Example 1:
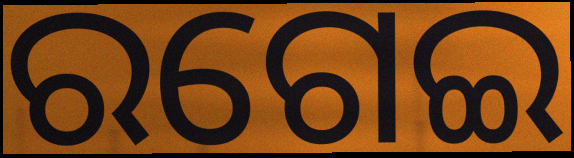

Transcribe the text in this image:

ରଗେଇ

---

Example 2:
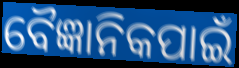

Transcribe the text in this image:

ବୈଜ୍ଞାନିକପାଇଁ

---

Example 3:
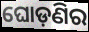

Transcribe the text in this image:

ଘୋଡ଼ଣିର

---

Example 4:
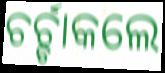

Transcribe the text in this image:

ଚର୍ଚ୍ଚାକଲେ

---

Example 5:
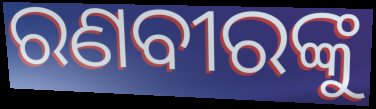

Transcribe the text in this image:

ରଣବୀରଙ୍କୁ